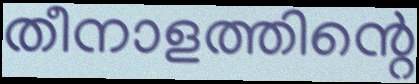
തീനാളത്തിന്റെ